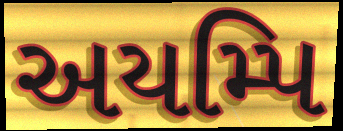
અયમ્પિ